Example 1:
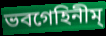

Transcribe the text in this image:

ভবগেহিনীম্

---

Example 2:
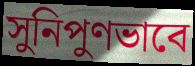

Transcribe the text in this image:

সুনিপুণভাবে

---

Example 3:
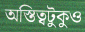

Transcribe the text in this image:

অস্তিত্বটুকুও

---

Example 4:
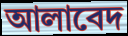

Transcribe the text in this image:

আলাবেদ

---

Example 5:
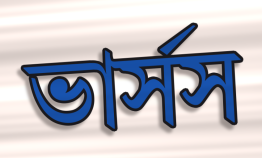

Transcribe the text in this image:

ভার্সস